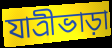
যাত্রীভাড়া